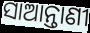
ସାଆନ୍ତାଣୀ